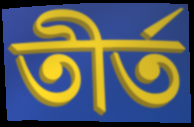
তীর্ত